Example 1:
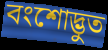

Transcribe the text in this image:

বংশোদ্ভুত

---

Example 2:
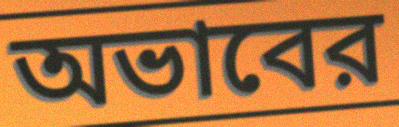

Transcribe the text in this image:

অভাবের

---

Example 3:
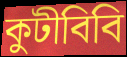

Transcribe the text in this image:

কুটীবিবি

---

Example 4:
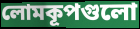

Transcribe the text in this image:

লোমকূপগুলো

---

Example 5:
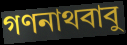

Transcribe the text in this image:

গণনাথবাবু